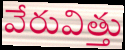
వేరువిత్తు